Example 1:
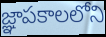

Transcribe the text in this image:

జ్ఞాపకాలలోని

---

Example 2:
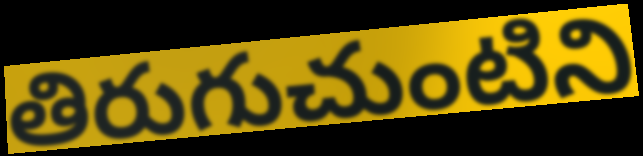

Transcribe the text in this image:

తిరుగుచుంటిని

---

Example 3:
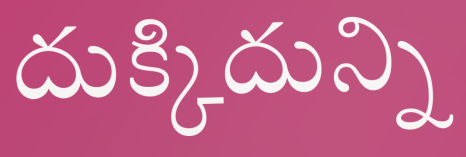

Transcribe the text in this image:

దుక్కిదున్ని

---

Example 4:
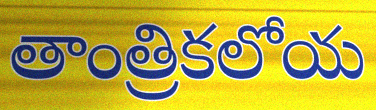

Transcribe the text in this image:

తాంత్రికలోయ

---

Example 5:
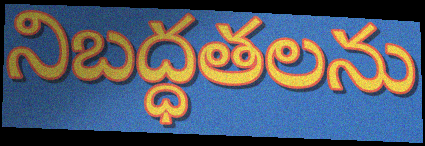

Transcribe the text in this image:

నిబద్ధతలను